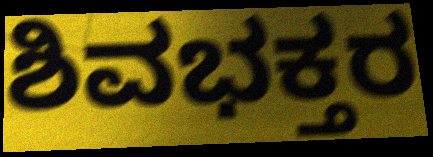
ಶಿವಭಕ್ತರ